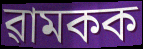
ৱামকক